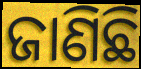
ଜାଣିଛି